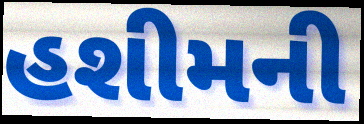
હશીમની